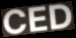
CED